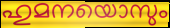
ഹുമനയൊസും